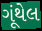
ગૂંથેલ